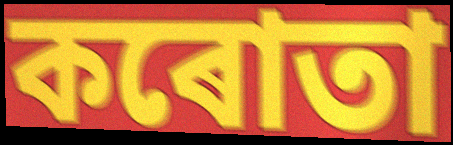
কৰোতা